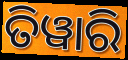
ତିୱାରି